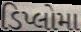
ડિપ્લોમા